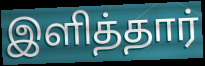
இளித்தார்